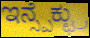
ಇನ್ಸ್ಪೆಕ್ಟ್ರು